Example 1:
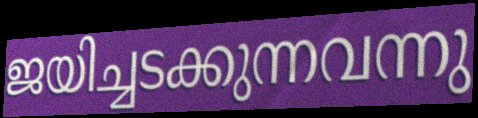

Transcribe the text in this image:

ജയിച്ചടക്കുന്നവന്നു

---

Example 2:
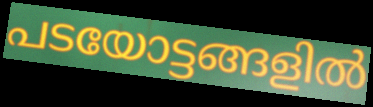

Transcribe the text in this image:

പടയോട്ടങ്ങളിൽ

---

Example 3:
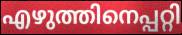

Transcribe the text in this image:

എഴുത്തിനെപ്പറ്റി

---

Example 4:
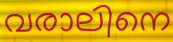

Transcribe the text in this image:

വരാലിനെ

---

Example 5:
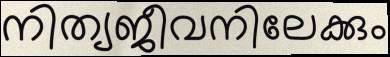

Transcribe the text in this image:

നിത്യജീവനിലേക്കും